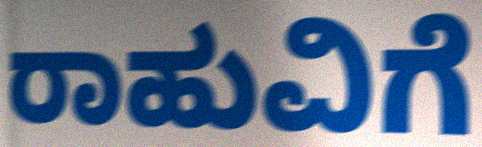
ರಾಹುವಿಗೆ